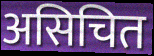
असिचित